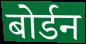
बोर्डन